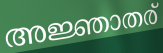
അജ്ഞാതര്